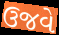
ઉજવે